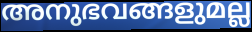
അനുഭവങ്ങളുമല്ല